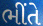
ભીંતે